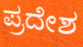
ಪ್ರದೇಶ